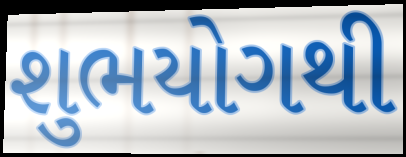
શુભયોગથી